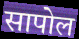
सापोल